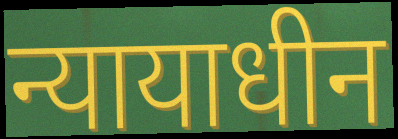
न्यायाधीन